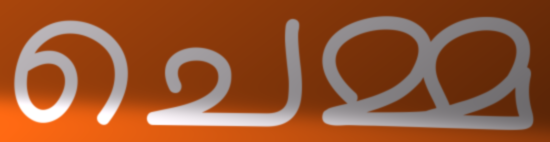
ചെമ്മ